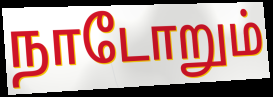
நாடோறும்